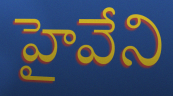
హైవేని